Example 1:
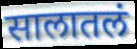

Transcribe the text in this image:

सालातलं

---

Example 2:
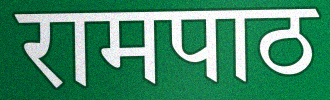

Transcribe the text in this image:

रामपाठ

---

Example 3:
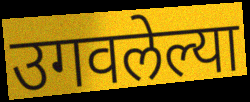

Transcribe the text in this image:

उगवलेल्या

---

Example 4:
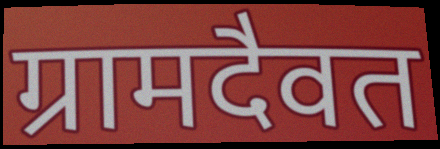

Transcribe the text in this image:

ग्रामदैवत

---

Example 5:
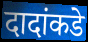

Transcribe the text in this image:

दादांकडे